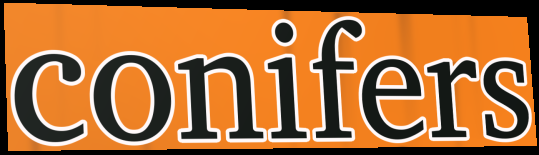
conifers